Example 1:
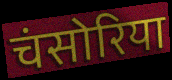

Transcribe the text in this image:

चंसोरिया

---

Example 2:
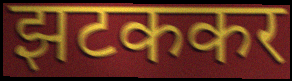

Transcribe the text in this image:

झटककर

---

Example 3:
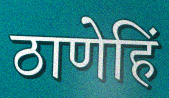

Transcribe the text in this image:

ठाणेहिं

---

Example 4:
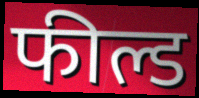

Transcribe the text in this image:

फील्ड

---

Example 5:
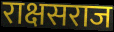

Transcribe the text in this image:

राक्षसराज